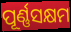
ପୂର୍ଣ୍ଣସକ୍ଷମ